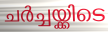
ചർച്ചയ്ക്കിടെ